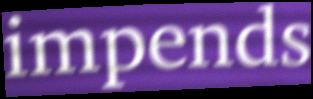
impends